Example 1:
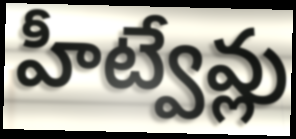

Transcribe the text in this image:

హీట్వేవ్లు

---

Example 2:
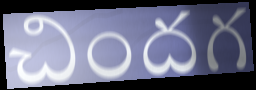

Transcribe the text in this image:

చిందగ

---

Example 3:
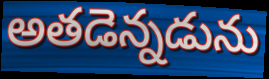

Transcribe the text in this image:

అతడెన్నడును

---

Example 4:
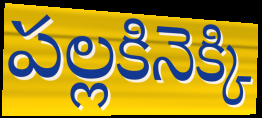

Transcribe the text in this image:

పల్లకినెక్కి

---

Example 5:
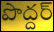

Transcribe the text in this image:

పొద్దర్